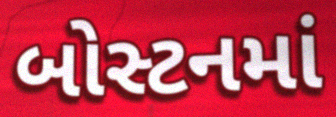
બોસ્ટનમાં